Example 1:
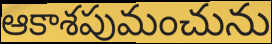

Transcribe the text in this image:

ఆకాశపుమంచును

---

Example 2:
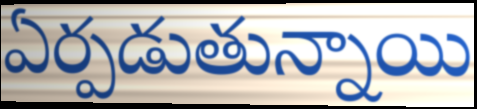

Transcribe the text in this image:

ఏర్పడుతున్నాయి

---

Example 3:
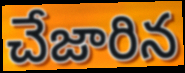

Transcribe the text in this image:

చేజారిన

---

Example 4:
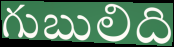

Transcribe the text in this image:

గుబులిది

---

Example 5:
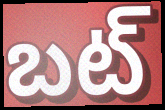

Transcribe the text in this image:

బట్